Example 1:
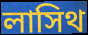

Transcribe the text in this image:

লাসিথ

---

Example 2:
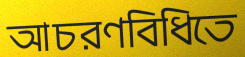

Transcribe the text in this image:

আচরণবিধিতে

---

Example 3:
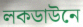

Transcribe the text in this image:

লকডাউনে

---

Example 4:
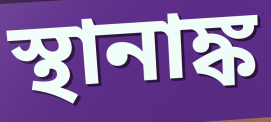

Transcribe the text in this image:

স্থানাঙ্ক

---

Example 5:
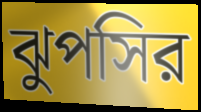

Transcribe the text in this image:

ঝুপসির